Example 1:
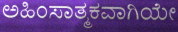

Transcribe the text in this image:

ಅಹಿಂಸಾತ್ಮಕವಾಗಿಯೇ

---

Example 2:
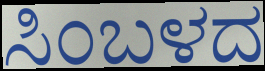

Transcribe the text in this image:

ಸಿಂಬಳದ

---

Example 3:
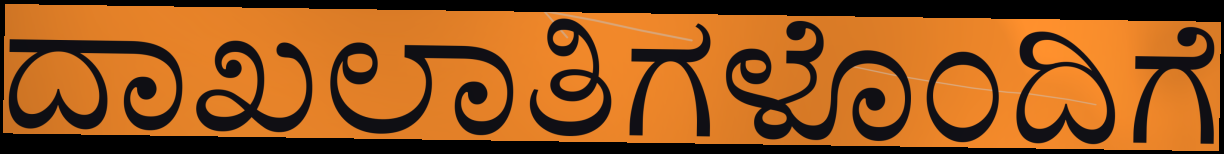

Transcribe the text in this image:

ದಾಖಲಾತಿಗಳೊಂದಿಗೆ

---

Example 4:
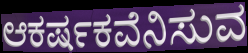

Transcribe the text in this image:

ಆಕರ್ಷಕವೆನಿಸುವ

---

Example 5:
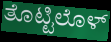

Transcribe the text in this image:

ತೊಟ್ಟಿಲೊಳ್